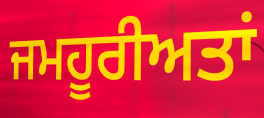
ਜਮਹੂਰੀਅਤਾਂ